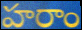
హరాం